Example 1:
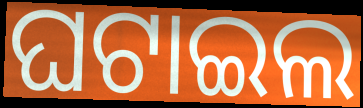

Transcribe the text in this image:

ଘଟାଇଲ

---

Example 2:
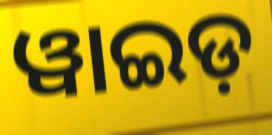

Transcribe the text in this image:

ୱାଇଡ଼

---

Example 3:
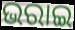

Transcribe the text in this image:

ଭରାଇ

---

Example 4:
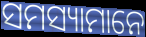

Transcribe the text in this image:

ସମସ୍ୟାମାନେ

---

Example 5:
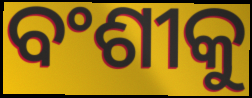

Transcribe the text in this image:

ବଂଶୀକୁ